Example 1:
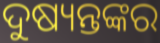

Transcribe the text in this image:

ଦୁଷ୍ୟନ୍ତଙ୍କର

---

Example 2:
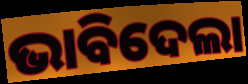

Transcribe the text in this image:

ଭାବିଦେଲା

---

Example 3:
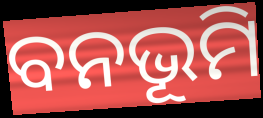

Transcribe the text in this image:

ବନଭୂମି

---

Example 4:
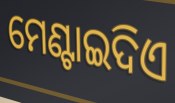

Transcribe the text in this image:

ମେଣ୍ଟାଇଦିଏ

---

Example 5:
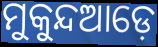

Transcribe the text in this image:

ମୁକୁନ୍ଦଆଡ଼େ